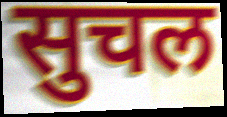
सुचल